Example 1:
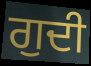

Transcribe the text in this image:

ਗੁਦੀ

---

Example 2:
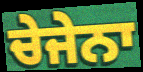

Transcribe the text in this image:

ਚੇਜੇਨਾ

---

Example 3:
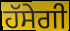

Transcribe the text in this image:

ਹੱਸੇਗੀ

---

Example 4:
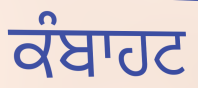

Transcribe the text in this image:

ਕੰਬਾਹਟ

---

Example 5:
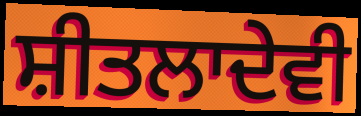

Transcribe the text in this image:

ਸ਼ੀਤਲਾਦੇਵੀ